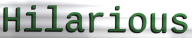
Hilarious